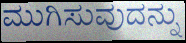
ಮುಗಿಸುವುದನ್ನು